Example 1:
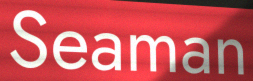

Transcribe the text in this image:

Seaman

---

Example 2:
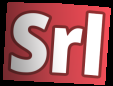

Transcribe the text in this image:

Srl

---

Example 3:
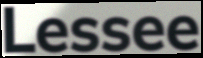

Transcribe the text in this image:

Lessee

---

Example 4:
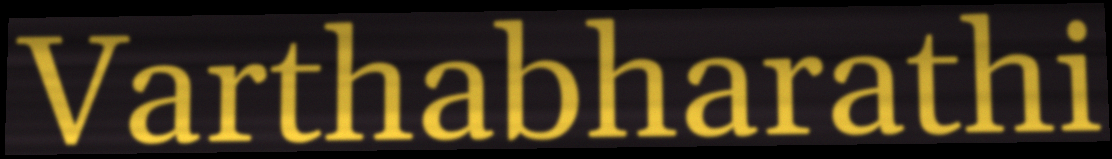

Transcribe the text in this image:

Varthabharathi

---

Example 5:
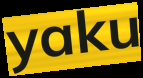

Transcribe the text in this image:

yaku